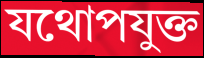
যথোপযুক্ত